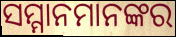
ସମ୍ମାନମାନଙ୍କର